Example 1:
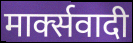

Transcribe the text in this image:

मार्क्‍सवादी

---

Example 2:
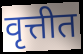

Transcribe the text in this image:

वृत्तीत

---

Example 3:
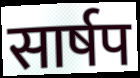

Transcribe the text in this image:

सार्षप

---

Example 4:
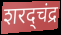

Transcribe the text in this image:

शरद्चंद्र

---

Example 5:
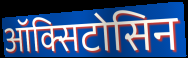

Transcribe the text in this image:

ऑक्सिटोसिन